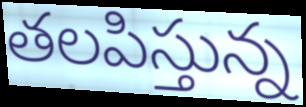
తలపిస్తున్న